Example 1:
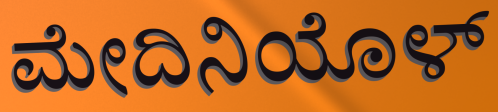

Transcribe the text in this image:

ಮೇದಿನಿಯೊಳ್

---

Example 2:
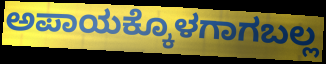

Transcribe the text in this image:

ಅಪಾಯಕ್ಕೊಳಗಾಗಬಲ್ಲ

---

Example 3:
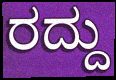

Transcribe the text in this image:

ರದ್ದು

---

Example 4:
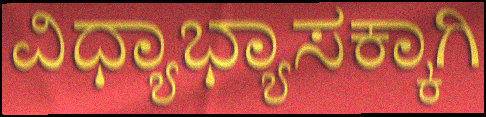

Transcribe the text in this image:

ವಿಧ್ಯಾಭ್ಯಾಸಕ್ಕಾಗಿ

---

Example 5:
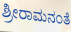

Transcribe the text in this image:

ಶ್ರೀರಾಮನಂತೆ